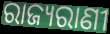
ରାଜ୍ୟରାଣୀ